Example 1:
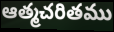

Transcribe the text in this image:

ఆత్మచరితము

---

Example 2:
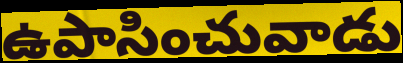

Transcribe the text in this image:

ఉపాసించువాడు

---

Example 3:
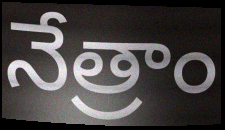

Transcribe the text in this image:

నేత్రాం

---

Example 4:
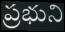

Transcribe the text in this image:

ప్రభుని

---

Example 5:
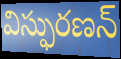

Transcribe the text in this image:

విస్ఫురణన్